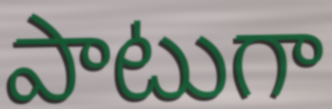
పాటుగా